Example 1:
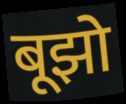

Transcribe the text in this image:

बूझो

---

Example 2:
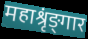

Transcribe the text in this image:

महाश्रृंङ्गार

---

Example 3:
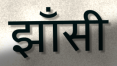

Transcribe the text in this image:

झाँसी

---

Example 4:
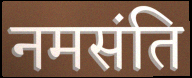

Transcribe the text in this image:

नमसंति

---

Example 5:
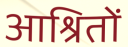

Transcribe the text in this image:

आश्रितों